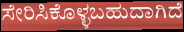
ಸೇರಿಸಿಕೊಳ್ಳಬಹುದಾಗಿದೆ